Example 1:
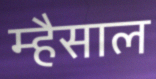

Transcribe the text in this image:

म्हैसाल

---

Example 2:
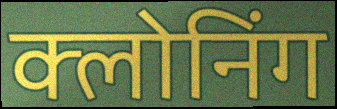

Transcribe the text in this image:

क्‍लोनिंग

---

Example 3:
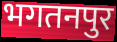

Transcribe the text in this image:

भगतनपुर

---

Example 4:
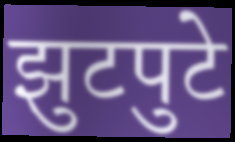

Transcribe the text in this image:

झुटपुटे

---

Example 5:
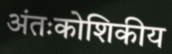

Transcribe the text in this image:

अंतःकोशिकीय